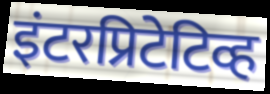
इंटरप्रिटेटिव्ह